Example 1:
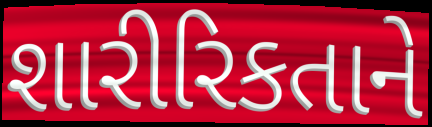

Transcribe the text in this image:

શારીરિકતાને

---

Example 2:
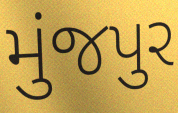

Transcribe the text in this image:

મુંજપુર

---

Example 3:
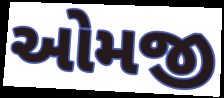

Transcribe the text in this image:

ઓમજી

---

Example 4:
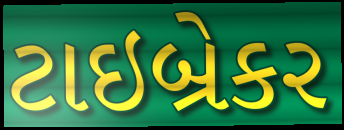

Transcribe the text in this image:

ટાઇબ્રેકર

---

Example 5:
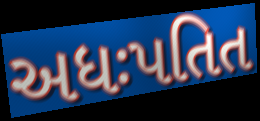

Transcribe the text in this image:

અધઃપતિત